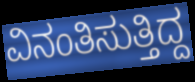
ವಿನಂತಿಸುತ್ತಿದ್ದ